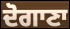
ਦੋਗਾਣਾ